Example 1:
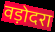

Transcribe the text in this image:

वड़ोदरा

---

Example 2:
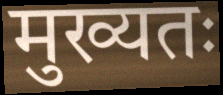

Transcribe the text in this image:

मुख्यतः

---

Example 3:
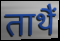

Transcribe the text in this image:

ताथैं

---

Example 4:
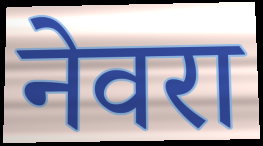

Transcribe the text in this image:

नेवरा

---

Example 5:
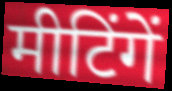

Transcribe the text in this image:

मीटिंगें